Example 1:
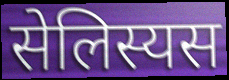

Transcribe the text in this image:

सेलिस्यस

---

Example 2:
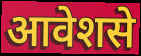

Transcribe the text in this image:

आवेशसे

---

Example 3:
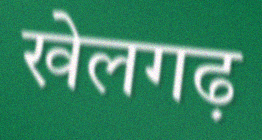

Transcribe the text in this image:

खेलगढ़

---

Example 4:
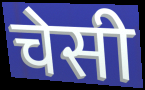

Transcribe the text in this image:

चेसी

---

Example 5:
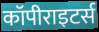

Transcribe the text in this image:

कॉपीराइटर्स